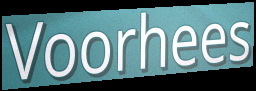
Voorhees